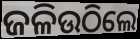
ଜଳିଉଠିଲେ